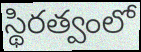
స్థిరత్వంలో